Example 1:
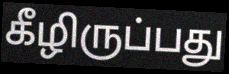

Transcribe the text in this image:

கீழிருப்பது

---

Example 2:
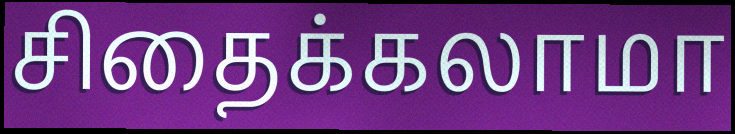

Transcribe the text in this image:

சிதைக்கலாமா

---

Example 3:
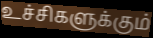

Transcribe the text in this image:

உச்சிகளுக்கும்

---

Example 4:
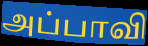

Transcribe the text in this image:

அப்பாவி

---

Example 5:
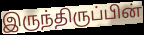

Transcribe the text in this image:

இருந்திருப்பின்